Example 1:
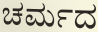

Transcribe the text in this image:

ಚರ್ಮದ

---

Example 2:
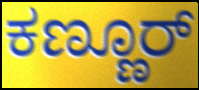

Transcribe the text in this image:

ಕಣ್ಣೂರ್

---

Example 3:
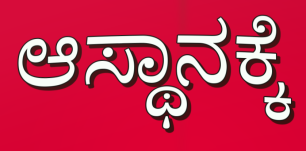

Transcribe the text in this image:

ಆಸ್ಥಾನಕ್ಕೆ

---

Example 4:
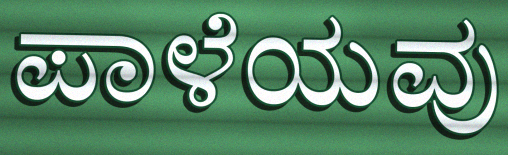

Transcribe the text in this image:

ಪಾಳೆಯವು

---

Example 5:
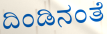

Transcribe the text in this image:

ದಿಂಡಿನಂತೆ